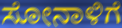
ಸೋನಾಳಿಗೆ